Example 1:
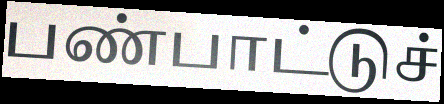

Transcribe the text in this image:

பண்பாட்டுச்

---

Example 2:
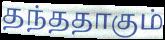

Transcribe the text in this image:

தந்ததாகும்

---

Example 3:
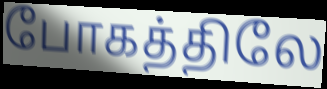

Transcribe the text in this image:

போகத்திலே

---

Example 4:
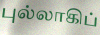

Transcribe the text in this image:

புல்லாகிப்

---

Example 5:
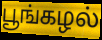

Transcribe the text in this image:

பூங்கழல்